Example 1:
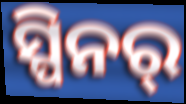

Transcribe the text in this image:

ସ୍ପିନର୍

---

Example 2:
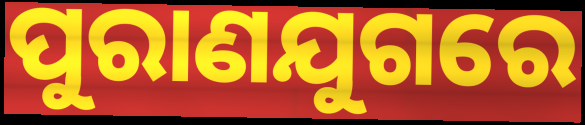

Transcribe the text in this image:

ପୁରାଣଯୁଗରେ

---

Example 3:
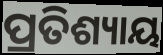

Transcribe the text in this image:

ପ୍ରତିଶ୍ୟାୟ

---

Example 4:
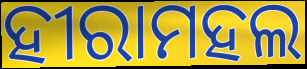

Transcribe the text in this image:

ହୀରାମହଲ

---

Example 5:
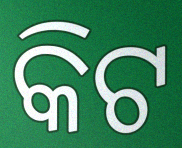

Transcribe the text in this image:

କିଟ